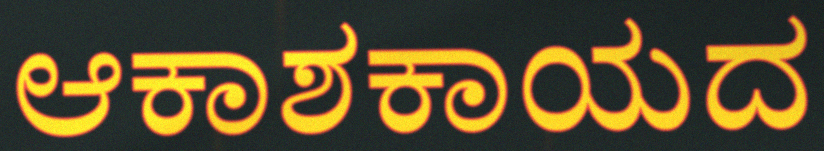
ಆಕಾಶಕಾಯದ